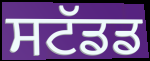
ਸਟੱਡਡ